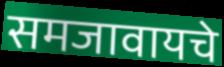
समजावायचे